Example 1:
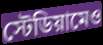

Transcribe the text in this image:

স্টেডিয়ামেও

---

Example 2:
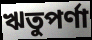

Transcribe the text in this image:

ঋতুপর্ণা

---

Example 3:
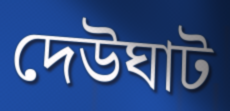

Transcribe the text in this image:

দেউঘাট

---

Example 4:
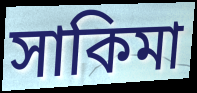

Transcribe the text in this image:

সাকিমা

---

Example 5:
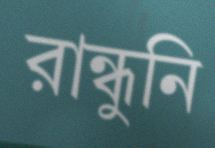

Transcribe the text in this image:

রান্ধুনি